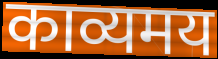
काव्यमय